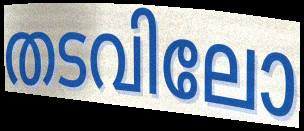
തടവിലോ